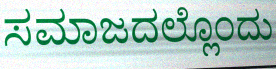
ಸಮಾಜದಲ್ಲೊಂದು